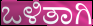
ಒಳಿತಾಗಿ